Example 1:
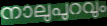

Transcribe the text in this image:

നാലുപുറവും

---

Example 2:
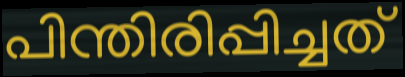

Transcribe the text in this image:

പിന്തിരിപ്പിച്ചത്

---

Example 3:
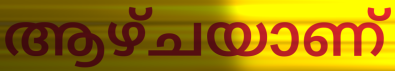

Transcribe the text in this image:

ആഴ്ചയാണ്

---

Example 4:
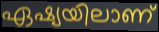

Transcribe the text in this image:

ഏഷ്യയിലാണ്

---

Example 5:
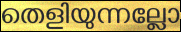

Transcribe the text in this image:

തെളിയുന്നല്ലോ